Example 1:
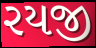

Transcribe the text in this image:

રયજી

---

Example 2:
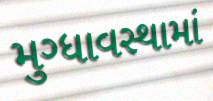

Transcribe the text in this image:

મુગ્ધાવસ્થામાં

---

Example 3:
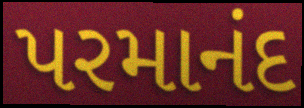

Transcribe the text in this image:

પરમાનંદ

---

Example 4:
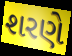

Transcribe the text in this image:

શરણે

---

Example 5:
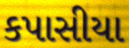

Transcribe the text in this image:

કપાસીયા